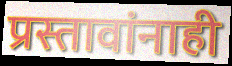
प्रस्तावांनाही